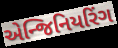
એન્જિનિયરિંગ